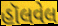
હૉલવેલ